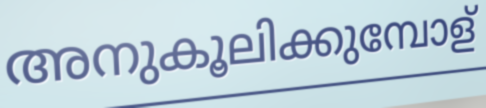
അനുകൂലിക്കുമ്പോള്